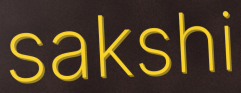
sakshi